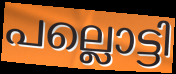
പല്ലൊട്ടി